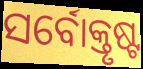
ସର୍ବୋକ୍ତୃଷ୍ଟ